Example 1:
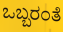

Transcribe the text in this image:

ಒಬ್ಬರಂತೆ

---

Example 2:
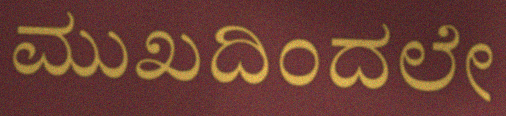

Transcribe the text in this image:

ಮುಖದಿಂದಲೇ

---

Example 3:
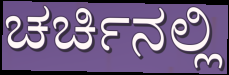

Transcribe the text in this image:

ಚರ್ಚಿನಲ್ಲಿ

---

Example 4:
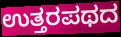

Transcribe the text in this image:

ಉತ್ತರಪಥದ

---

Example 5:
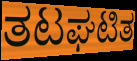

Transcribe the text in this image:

ತಟಘಟಿತ